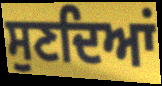
ਸੁਣਦਿਆਂ